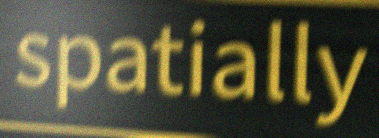
spatially